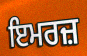
ਇਮਰਜ਼